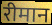
रीमान